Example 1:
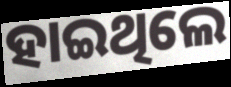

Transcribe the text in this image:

ହାଇଥିଲେ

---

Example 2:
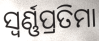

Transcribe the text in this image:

ସ୍ୱର୍ଣ୍ଣପ୍ରତିମା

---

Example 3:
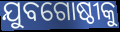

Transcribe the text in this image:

ଯୁବଗୋଷ୍ଠୀକୁ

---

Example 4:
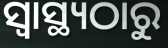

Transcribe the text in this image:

ସ୍ବାସ୍ଥ୍ୟଠାରୁ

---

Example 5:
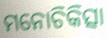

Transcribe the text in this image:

ମନୋଚିକିତ୍ସା